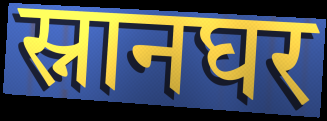
स्नानघर